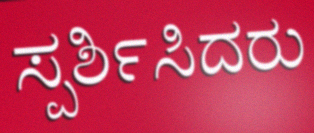
ಸ್ಪರ್ಶಿಸಿದರು